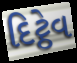
દિટ્ઠેવ